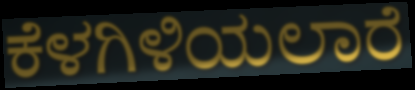
ಕೆಳಗಿಳಿಯಲಾರೆ